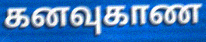
கனவுகாண